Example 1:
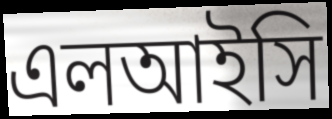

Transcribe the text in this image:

এলআইসি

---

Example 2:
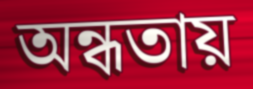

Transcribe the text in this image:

অন্ধতায়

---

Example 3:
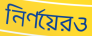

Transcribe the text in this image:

নির্ণয়েরও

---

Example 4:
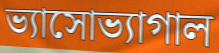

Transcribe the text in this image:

ভ্যাসোভ্যাগাল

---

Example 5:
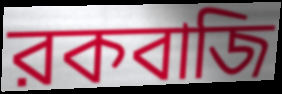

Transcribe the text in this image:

রকবাজি